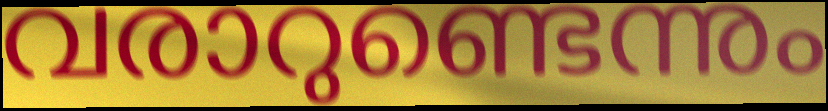
വരാറുണ്ടെന്നും